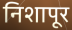
निशापूर